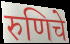
रुणिचे